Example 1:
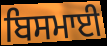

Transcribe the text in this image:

ਬਿਸਮਾਈ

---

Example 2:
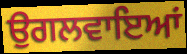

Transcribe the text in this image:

ਉਗਲਵਾਇਆਂ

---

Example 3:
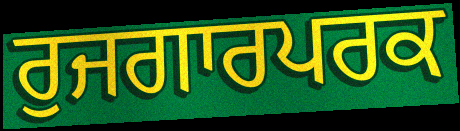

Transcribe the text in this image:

ਰੁਜਗਾਰਪਰਕ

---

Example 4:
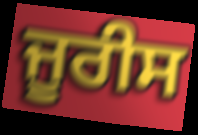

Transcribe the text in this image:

ਜੂਰੀਸ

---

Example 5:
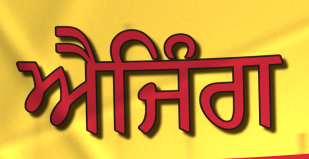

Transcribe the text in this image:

ਐਜਿੰਗ